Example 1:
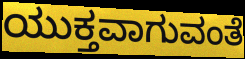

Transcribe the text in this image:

ಯುಕ್ತವಾಗುವಂತೆ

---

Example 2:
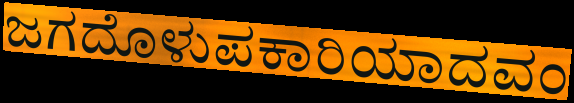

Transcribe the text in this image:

ಜಗದೊಳುಪಕಾರಿಯಾದವಂ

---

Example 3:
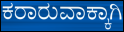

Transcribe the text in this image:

ಕರಾರುವಾಕ್ಕಾಗಿ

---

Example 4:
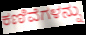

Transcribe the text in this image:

ಕಣಿವೆಗಳನ್ನು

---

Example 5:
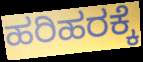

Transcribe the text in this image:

ಹರಿಹರಕ್ಕೆ